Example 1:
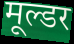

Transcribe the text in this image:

मूल्डर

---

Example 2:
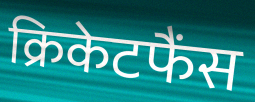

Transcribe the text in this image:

क्रिकेटफैंस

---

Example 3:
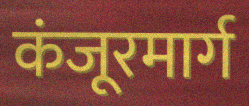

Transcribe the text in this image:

कंजूरमार्ग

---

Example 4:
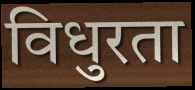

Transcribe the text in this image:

विधुरता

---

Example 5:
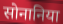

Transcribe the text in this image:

सोनानिया